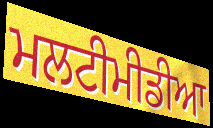
ਮਲਟੀਮੀਡੀਆ